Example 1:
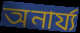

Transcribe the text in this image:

অনার্য্য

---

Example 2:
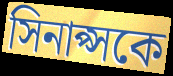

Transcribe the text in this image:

সিনাপ্সকে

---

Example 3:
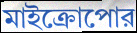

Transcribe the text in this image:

মাইক্রোপোর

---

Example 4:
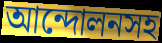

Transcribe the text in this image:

আন্দোলনসহ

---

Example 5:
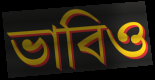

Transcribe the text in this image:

ভাবিও